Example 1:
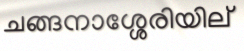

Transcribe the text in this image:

ചങ്ങനാശ്ശേരിയില്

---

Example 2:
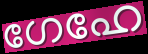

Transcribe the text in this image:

ഗേഹേ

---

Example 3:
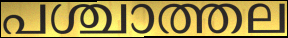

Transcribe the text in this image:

പശ്ചാത്തല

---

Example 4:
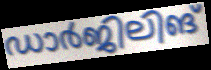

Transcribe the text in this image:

ഡാർജിലിങ്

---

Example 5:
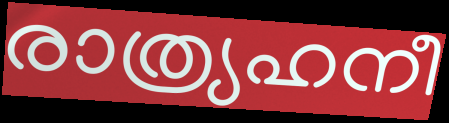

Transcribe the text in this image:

രാത്ര്യഹനീ